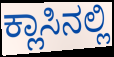
ಕ್ಲಾಸಿನಲ್ಲಿ